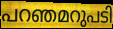
പറഞമറുപടി